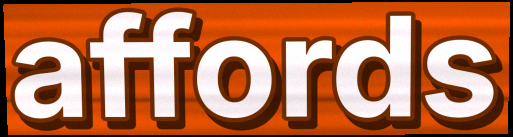
affords